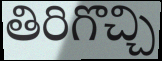
తిరిగొచ్చి